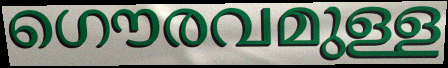
ഗൌരവമുള്ള